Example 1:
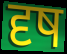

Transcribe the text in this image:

दृष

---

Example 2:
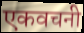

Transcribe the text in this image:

एकवचनी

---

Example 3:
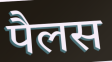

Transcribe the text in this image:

पैलस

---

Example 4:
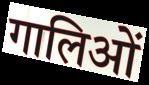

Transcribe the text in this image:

गालिओं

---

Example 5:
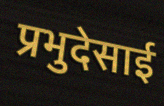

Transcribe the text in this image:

प्रभुदेसाई